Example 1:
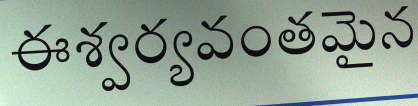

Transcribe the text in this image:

ఈశ్వర్యవంతమైన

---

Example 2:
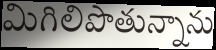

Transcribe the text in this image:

మిగిలిపొతున్నాను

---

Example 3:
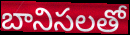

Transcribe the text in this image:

బానిసలతో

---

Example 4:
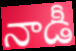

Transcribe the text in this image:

నాడీ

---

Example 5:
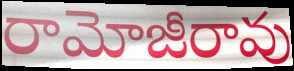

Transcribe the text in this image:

రామోజీరావు